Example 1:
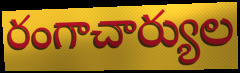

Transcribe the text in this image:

రంగాచార్యుల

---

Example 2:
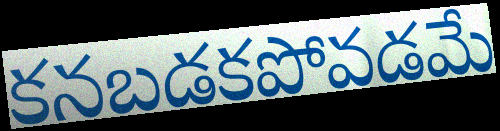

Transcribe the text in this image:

కనబడకపోవడమే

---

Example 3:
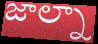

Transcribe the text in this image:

జాల్నా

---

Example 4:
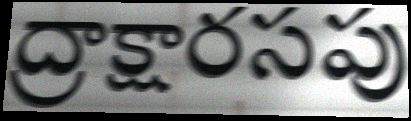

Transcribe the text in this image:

ద్రాక్షారసపు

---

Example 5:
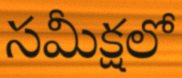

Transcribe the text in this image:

సమీక్షలో